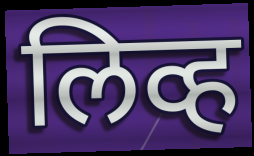
लिव्ह